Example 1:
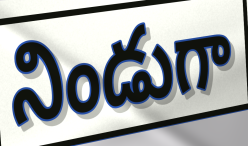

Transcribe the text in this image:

నిండుగా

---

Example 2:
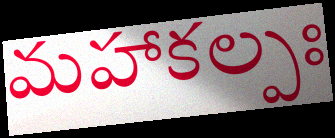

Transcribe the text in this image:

మహాకల్పః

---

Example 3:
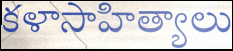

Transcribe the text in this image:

కళాసాహిత్యాలు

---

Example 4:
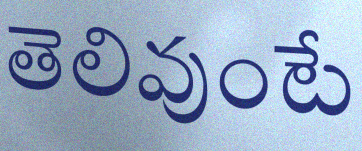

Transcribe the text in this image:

తెలివుంటే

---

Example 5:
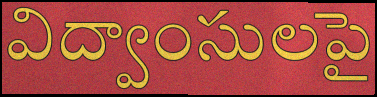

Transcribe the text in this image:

విద్వాంసులపై